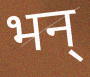
भन्